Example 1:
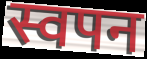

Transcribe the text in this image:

स्वपन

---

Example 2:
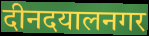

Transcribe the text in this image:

दीनदयालनगर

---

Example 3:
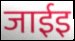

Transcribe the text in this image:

जाईइ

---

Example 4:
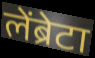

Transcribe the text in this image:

लेंब्रेटा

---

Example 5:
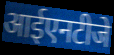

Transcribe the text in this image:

आईएनटीजे